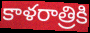
కాళరాత్రికి